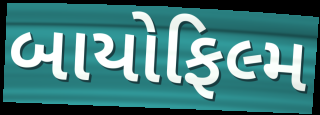
બાયોફિલ્મ